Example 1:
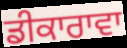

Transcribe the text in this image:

ਡੀਕਾਰਾਵਾ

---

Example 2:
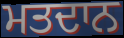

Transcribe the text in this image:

ਮਤਦਾਨ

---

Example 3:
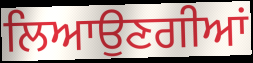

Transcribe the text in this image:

ਲਿਆਉਣਗੀਆਂ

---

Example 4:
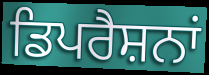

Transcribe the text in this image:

ਡਿਪਰੈਸ਼ਨਾਂ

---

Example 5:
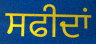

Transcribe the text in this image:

ਸਫੀਦਾਂ